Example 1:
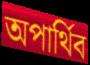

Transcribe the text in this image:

অপার্থিব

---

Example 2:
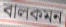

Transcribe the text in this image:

বালকমন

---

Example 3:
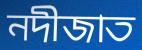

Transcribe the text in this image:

নদীজাত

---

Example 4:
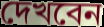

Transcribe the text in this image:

দেখবেন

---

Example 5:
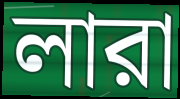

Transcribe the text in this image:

লারা